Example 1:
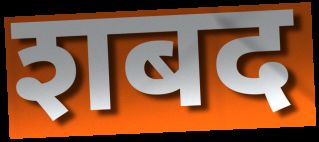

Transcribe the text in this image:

शबद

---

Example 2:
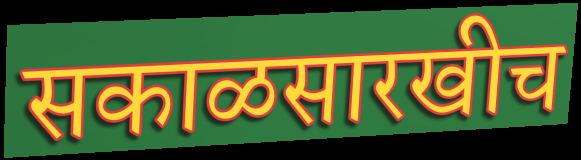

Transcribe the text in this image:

सकाळसारखीच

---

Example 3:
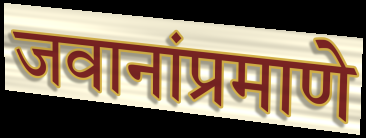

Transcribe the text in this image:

जवानांप्रमाणे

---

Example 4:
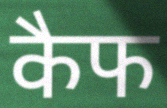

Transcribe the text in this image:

कैफ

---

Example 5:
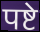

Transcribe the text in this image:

पष्टे